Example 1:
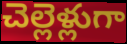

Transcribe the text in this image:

చెల్లెళ్లుగా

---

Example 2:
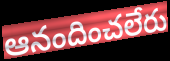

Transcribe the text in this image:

ఆనందించలేరు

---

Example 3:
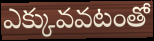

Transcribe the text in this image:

ఎక్కువవటంతో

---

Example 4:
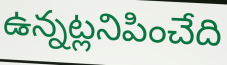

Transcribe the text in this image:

ఉన్నట్లనిపించేది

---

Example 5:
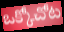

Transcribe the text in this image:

ఒక్కోచోట